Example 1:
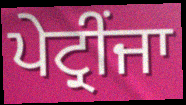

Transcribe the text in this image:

ਪੇਟ੍ਰੀਂਜਾ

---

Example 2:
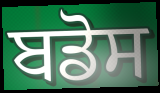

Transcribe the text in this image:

ਬਡੋਸ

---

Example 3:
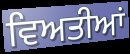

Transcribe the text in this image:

ਵਿਅਤੀਆਂ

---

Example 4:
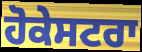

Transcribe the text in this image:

ਹੋਕੇਸਟਰਾ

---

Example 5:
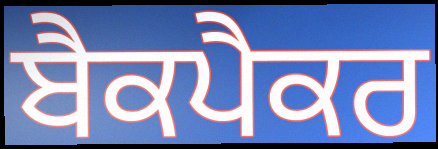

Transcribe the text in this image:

ਬੈਕਪੈਕਰ